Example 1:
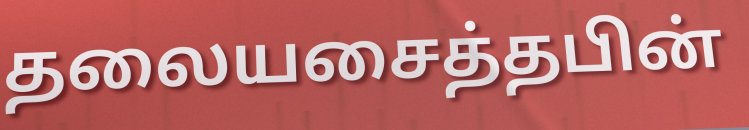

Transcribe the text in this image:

தலையசைத்தபின்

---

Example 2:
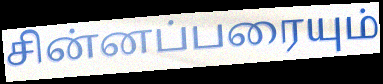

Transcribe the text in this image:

சின்னப்பரையும்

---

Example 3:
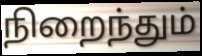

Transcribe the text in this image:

நிறைந்தும்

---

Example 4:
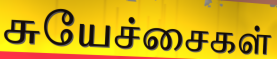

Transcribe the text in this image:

சுயேச்சைகள்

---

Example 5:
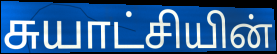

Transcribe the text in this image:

சுயாட்சியின்